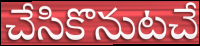
చేసికొనుటచే